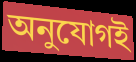
অনুযোগই